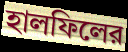
হালফিলের